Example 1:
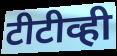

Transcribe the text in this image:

टीटीव्ही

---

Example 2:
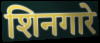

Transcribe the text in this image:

शिनगारे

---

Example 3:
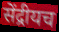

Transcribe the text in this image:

सेंद्रीयच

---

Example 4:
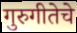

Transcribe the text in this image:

गुरुगीतेचे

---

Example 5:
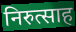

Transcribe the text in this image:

निरुत्साह